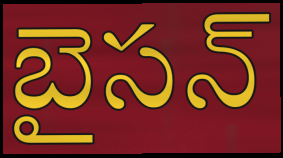
బైసన్